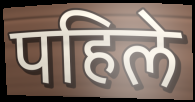
पहिले